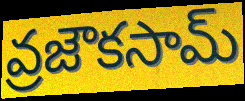
వ్రజౌకసామ్